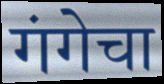
गंगेचा